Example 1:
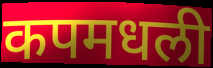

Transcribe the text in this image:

कपमधली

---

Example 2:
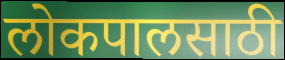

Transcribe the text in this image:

लोकपालसाठी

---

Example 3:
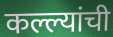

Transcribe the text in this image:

कल्ल्यांची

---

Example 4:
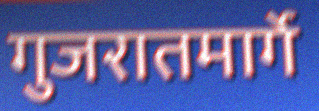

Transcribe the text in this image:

गुजरातमार्गे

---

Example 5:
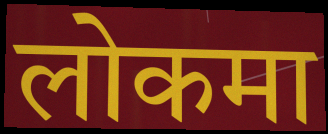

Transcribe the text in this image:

लोकमा